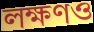
লক্ষণও